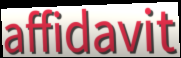
affidavit